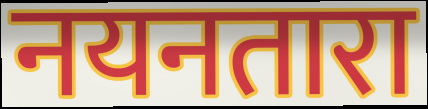
नयनतारा